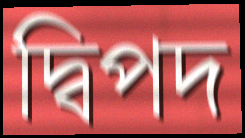
দ্বিপদ